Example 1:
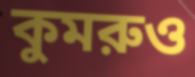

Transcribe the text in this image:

কুমরুও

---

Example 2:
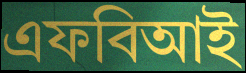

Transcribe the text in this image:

এফবিআই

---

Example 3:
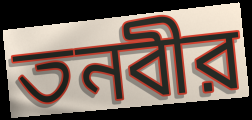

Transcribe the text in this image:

তনবীর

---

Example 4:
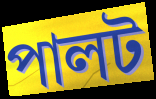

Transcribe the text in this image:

পালট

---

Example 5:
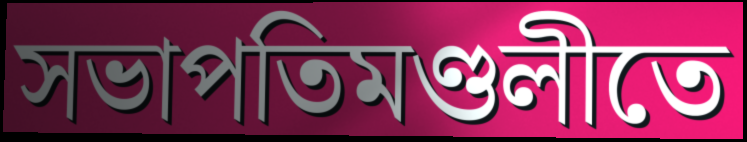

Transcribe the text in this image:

সভাপতিমণ্ডলীতে